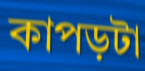
কাপড়টা